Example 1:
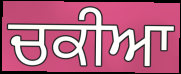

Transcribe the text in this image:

ਚਕੀਆ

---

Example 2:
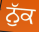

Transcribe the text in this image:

ਨੁੱਕ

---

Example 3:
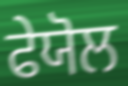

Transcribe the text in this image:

ਫੇਯੋਲ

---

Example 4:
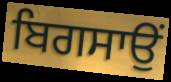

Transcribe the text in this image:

ਬਿਗਸਾਉਂ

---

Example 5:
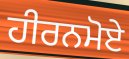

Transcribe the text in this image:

ਹੀਰਨਮੋਏ